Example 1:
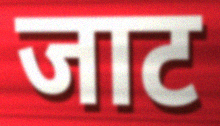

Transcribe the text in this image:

जाट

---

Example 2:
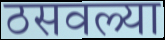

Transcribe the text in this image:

ठसवल्या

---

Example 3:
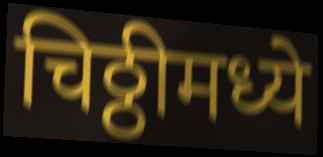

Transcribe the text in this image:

चिठ्ठीमध्ये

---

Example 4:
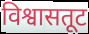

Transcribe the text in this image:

विश्वासतूट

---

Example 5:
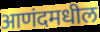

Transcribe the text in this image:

आणंदमधील